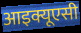
आइक्यूएसी